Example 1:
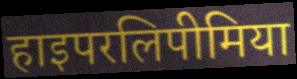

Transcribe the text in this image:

हाइपरलिपीमिया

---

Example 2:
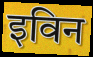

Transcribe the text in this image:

इविन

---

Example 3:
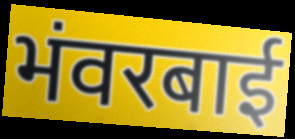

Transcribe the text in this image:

भंवरबाई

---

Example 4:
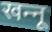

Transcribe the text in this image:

खन्नू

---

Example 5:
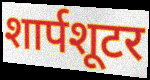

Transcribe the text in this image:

शार्पशूटर